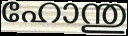
ഹോന്തു